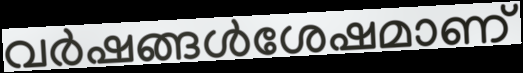
വർഷങ്ങൾശേഷമാണ്